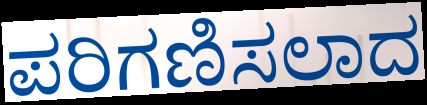
ಪರಿಗಣಿಸಲಾದ